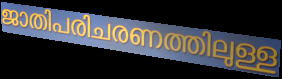
ജാതിപരിചരണത്തിലുള്ള